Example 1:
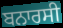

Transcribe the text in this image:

ਬਨਾਰਸੀ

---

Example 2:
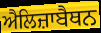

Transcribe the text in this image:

ਐਲਿਜ਼ਾਬੈਥਨ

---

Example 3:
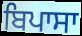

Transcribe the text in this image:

ਬਿਪਾਸਾ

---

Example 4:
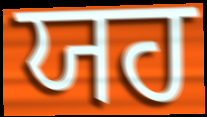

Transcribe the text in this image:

ਯਹ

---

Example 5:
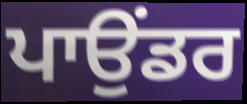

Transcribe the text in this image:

ਪਾਉਂਡਰ